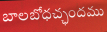
బాలబోధచ్ఛందము